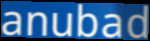
anubad